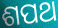
ଶପଥ